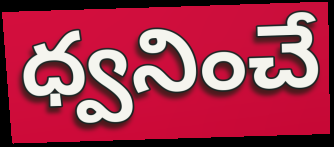
ధ్వనించే